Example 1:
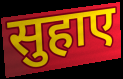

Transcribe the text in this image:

सुहाए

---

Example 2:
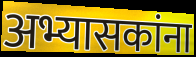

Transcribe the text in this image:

अभ्यासकांना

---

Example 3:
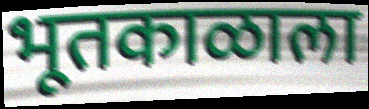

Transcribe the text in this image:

भूतकाळाला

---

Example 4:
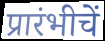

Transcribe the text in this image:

प्रारंभीचें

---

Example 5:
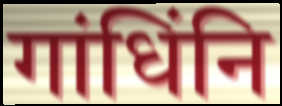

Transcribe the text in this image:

गांधिंनि